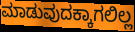
ಮಾಡುವುದಕ್ಕಾಗಲಿಲ್ಲ